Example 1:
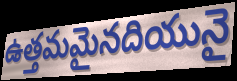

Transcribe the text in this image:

ఉత్తమమైనదియునై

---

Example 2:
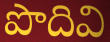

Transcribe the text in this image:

పొదివి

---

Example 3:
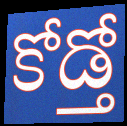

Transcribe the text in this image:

కోడ్తో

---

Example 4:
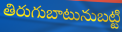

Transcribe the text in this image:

తిరుగుబాటునుబట్టి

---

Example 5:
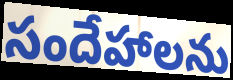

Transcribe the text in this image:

సందేహాలను